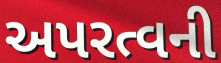
અપરત્વની